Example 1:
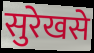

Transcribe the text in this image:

सुरेखसे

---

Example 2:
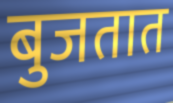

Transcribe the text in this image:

बुजतात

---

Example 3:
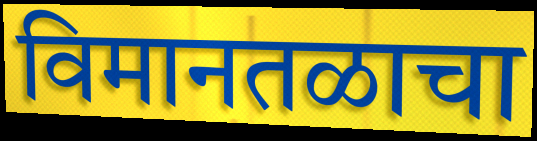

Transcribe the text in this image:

विमानतळाचा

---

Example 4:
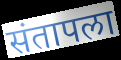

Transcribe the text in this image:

संतापला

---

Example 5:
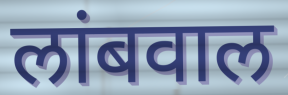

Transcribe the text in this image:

लांबवाल